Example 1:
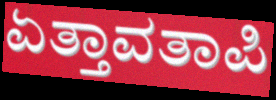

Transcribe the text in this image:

ಏತ್ತಾವತಾಪಿ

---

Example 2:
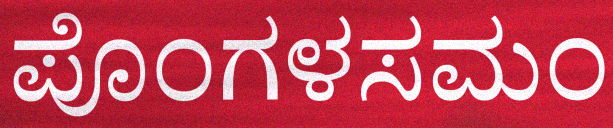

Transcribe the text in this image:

ಪೊಂಗಳಸಮಂ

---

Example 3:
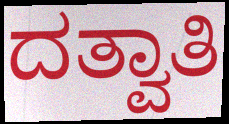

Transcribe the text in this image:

ದತ್ವಾತಿ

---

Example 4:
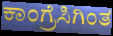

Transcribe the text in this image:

ಕಾಂಗ್ರೆಸಿಗಿಂತ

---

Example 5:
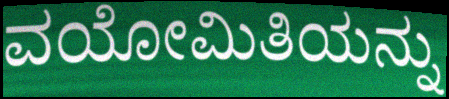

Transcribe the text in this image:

ವಯೋಮಿತಿಯನ್ನು